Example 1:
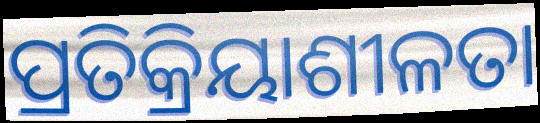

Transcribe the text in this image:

ପ୍ରତିକ୍ରିୟାଶୀଳତା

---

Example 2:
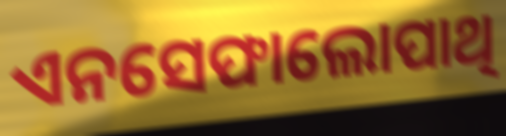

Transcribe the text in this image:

ଏନସେଫାଲୋପାଥି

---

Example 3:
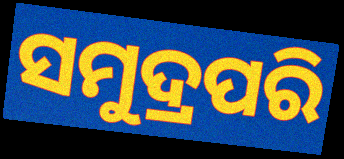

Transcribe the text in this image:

ସମୁଦ୍ରପରି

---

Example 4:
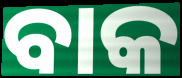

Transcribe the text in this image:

ବାକ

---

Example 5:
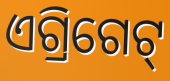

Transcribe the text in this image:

ଏଗ୍ରିଗେଟ୍